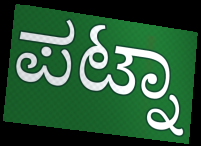
ಪಟ್ನಾ